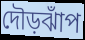
দৌড়ঝাঁপ